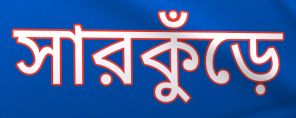
সারকুঁড়ে